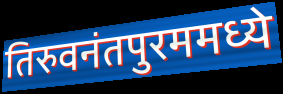
तिरुवनंतपुरममध्ये